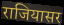
राजियासर